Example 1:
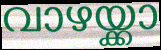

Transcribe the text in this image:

വാഴയ്ക്കാ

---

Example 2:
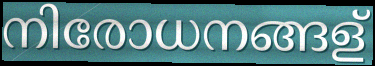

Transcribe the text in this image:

നിരോധനങ്ങള്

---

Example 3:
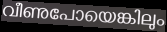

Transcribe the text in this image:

വീണുപോയെങ്കിലും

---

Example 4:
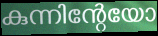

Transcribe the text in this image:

കുന്നിന്റേയോ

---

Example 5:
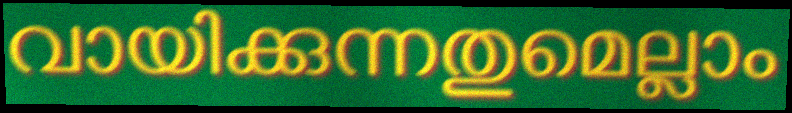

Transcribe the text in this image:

വായിക്കുന്നതുമെല്ലാം